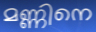
മണ്ണിനെ